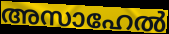
അസാഹേൽ